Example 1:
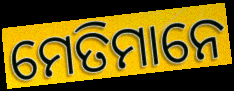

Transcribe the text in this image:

ମେତିମାନେ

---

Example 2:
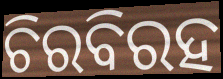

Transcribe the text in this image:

ଚିରବିରହ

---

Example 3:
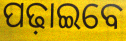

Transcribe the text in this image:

ପଢ଼ାଇବେ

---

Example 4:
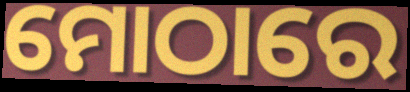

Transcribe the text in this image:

ମୋଠାରେ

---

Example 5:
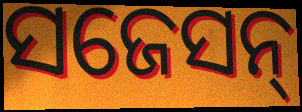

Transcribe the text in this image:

ସଜେସନ୍